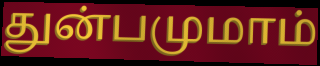
துன்பமுமாம்